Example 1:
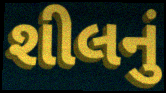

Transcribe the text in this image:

શીલનું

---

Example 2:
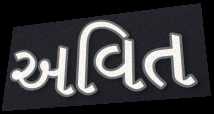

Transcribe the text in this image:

અવિત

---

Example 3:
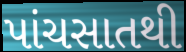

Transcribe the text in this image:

પાંચસાતથી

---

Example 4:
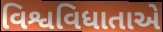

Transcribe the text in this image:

વિશ્વવિધાતાએ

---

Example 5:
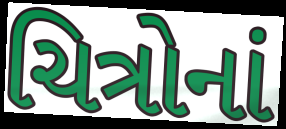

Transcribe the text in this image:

ચિત્રોનાં